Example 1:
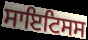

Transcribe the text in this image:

ਸਾਇਟਿਸਸ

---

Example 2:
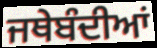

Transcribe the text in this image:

ਜਥੇਬੰਦੀਆਂ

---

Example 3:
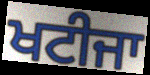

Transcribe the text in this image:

ਖਟੀਜਾ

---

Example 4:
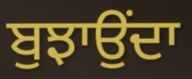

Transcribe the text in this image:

ਬੁਝਾਉਂਦਾ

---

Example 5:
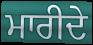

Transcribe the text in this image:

ਮਾਰੀਦੇ